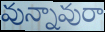
వున్నావురా